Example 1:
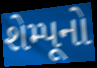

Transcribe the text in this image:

શેમ્પૂનો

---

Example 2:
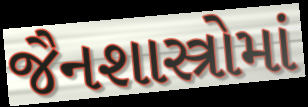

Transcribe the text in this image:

જૈનશાસ્ત્રોમાં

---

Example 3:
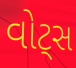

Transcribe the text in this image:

વોટ્સ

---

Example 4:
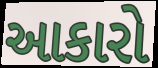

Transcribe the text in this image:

આકારો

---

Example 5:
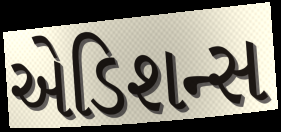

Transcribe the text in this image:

એડિશન્સ